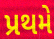
પ્રથમે